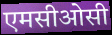
एमसीओसी